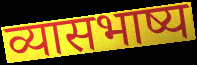
व्यासभाष्य